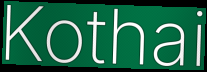
Kothai